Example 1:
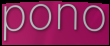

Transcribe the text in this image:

pono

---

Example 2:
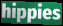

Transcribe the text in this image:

hippies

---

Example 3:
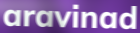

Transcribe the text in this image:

aravinad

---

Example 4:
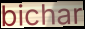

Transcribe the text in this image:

bichar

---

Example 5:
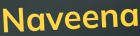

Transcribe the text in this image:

Naveena